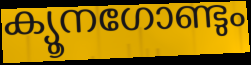
ക്യൂനഗോണ്ടും